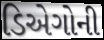
ડિએગોની